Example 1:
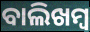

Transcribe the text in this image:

ବାଲିଖମ୍ବ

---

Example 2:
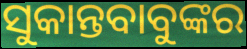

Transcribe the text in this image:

ସୁକାନ୍ତବାବୁଙ୍କର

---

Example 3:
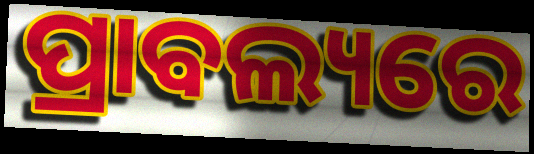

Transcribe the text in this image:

ପ୍ରାବଲ୍ୟରେ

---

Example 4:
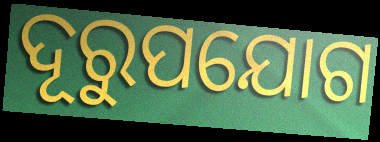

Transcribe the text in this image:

ଦୂରୁପଯୋଗ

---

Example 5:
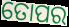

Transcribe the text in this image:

ତୋପର